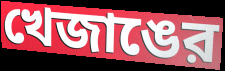
খেজাঙের